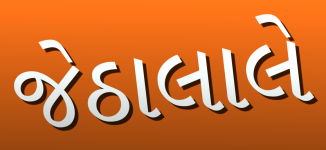
જેઠાલાલે